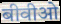
बीवीओ